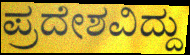
ಪ್ರದೇಶವಿದ್ದು